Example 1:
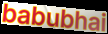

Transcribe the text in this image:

babubhai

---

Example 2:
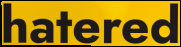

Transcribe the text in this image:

hatered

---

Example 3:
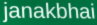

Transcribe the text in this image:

janakbhai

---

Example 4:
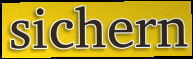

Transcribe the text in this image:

sichern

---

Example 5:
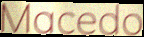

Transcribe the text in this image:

Macedo